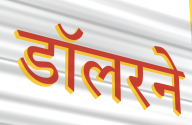
डॉलरने